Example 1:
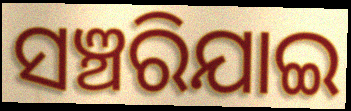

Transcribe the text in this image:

ସଞ୍ଚରିଯାଇ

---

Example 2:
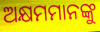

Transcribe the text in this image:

ଅକ୍ଷମମାନଙ୍କୁ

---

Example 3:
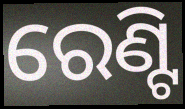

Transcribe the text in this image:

ରେଣ୍ଟି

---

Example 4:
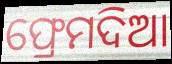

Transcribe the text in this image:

ଫ୍ରେମଦିଆ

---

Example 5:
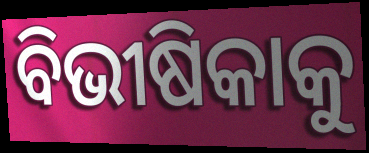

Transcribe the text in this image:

ବିଭୀଷିକାକୁ